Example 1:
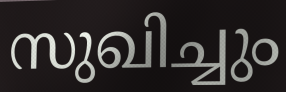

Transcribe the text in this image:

സുഖിച്ചും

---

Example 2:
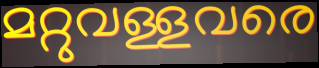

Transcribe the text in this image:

മറ്റുവള്ളവരെ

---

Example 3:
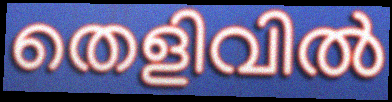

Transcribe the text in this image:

തെളിവിൽ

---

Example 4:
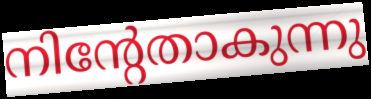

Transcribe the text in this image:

നിന്റേതാകുന്നു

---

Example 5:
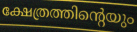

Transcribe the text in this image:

ക്ഷേത്രത്തിന്റെയും